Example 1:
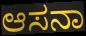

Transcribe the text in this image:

ಆಸನಾ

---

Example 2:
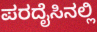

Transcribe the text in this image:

ಪರದೈಸಿನಲ್ಲಿ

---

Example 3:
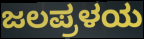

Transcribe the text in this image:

ಜಲಪ್ರಳಯ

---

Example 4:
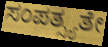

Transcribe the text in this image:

ಸಂಪತ್ಸ್ಯತೇ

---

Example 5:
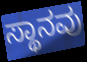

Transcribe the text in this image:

ಸ್ಥಾನವು